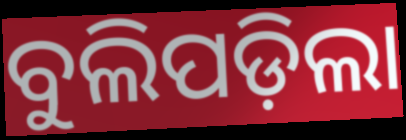
ବୁଲିପଡ଼ିଲା